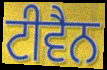
ਟੀਵੈਨ